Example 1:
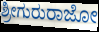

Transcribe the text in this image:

ಶ್ರೀಗುರುರಾಜೋ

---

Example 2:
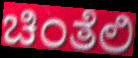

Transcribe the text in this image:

ಚಿಂತೆಲಿ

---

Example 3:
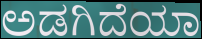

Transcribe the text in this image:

ಅಡಗಿದೆಯಾ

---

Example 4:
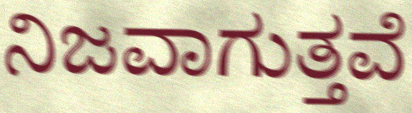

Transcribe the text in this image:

ನಿಜವಾಗುತ್ತವೆ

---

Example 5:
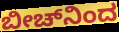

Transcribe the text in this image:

ಬೀಚ್‌ನಿಂದ